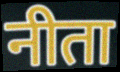
नीता